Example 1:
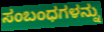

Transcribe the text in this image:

ಸಂಬಂಧಗಳನ್ನು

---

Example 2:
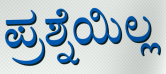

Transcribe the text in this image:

ಪ್ರಶ್ನೆಯಿಲ್ಲ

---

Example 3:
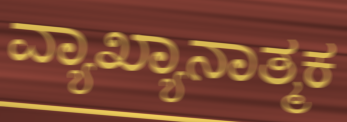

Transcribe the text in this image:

ವ್ಯಾಖ್ಯಾನಾತ್ಮಕ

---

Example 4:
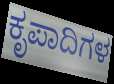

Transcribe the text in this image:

ಕೃಪಾದಿಗಳ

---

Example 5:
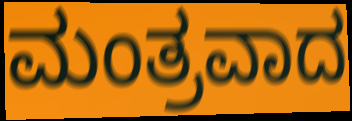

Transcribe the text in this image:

ಮಂತ್ರವಾದ